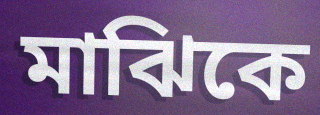
মাঝিকে